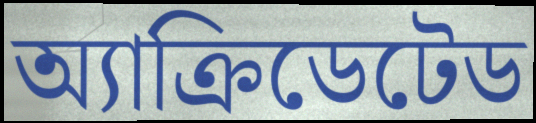
অ্যাক্রিডেটেড